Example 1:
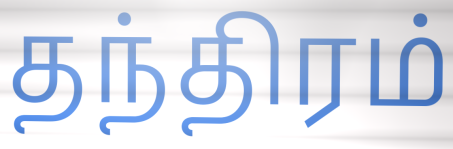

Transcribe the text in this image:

தந்திரம்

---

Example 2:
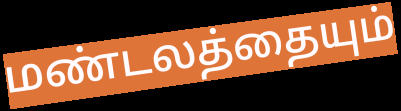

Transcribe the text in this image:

மண்டலத்தையும்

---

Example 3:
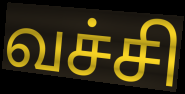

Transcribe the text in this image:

வச்சி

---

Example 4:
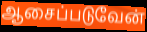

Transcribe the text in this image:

ஆசைப்படுவேன்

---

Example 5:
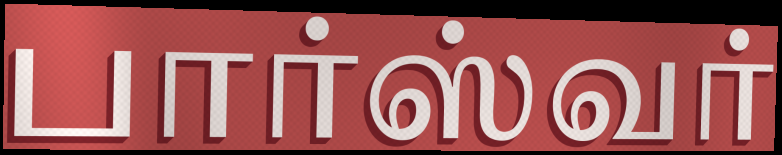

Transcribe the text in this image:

பார்ஸ்வர்